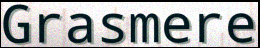
Grasmere